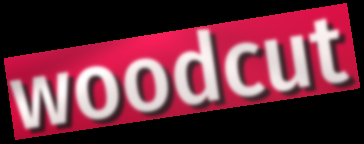
woodcut